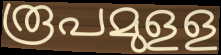
രൂപമുളള